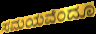
ಸಮಯವೆಂದೂ